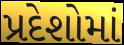
પ્રદેશોમાં